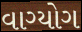
વાગ્યોગ